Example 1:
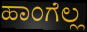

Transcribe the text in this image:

ಹಾಂಗೆಲ್ಲ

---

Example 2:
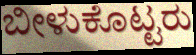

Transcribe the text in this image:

ಬೀಳುಕೊಟ್ಟರು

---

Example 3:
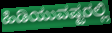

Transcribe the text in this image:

ಹಿಡಿಯುವಷ್ಟರಲ್ಲಿ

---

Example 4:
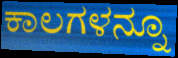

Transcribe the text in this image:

ಕಾಲಗಳನ್ನೂ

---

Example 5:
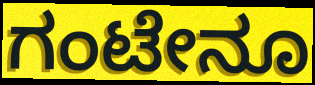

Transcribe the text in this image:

ಗಂಟೇನೂ